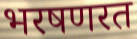
भरषणरत